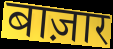
बाज़ार